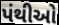
પંથીઓ